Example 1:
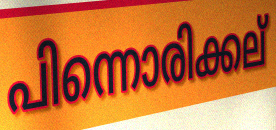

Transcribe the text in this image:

പിന്നൊരിക്കല്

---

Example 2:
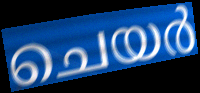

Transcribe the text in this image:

ചെയർ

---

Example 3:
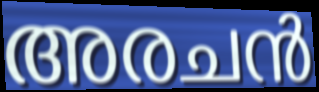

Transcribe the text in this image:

അരചൻ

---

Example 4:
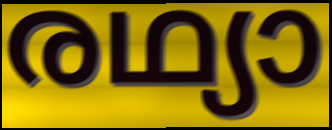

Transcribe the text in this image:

രഥ്യാ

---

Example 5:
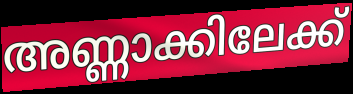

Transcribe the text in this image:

അണ്ണാക്കിലേക്ക്